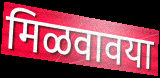
मिळवावया